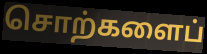
சொற்களைப்